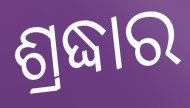
ଶ୍ରଦ୍ଧାର